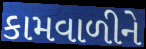
કામવાળીને